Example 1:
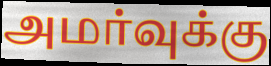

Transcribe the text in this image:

அமர்வுக்கு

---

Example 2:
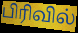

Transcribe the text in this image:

பிரிவில்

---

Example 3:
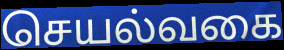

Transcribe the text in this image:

செயல்வகை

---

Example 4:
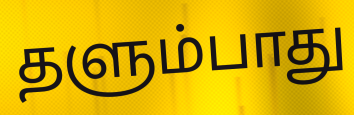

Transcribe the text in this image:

தளும்பாது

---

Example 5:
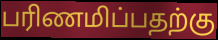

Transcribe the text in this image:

பரிணமிப்பதற்கு